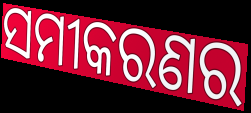
ସମୀକରଣର